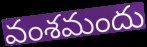
వంశమందు